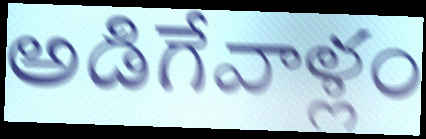
అడిగేవాళ్లం